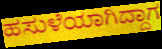
ಹಸುಳೆಯಾಗಿದ್ದಾಗ